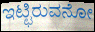
ಇಟ್ಟಿರುವನೋ